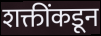
शक्तींकडून